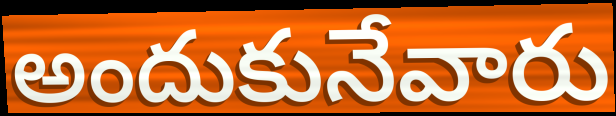
అందుకునేవారు